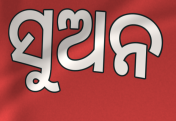
ସୁଅନ